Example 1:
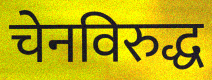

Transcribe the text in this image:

चेनविरुद्ध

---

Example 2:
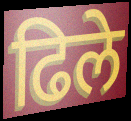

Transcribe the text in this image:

ढिले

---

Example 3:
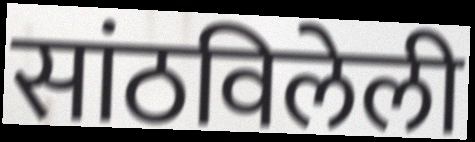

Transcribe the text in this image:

सांठविलेली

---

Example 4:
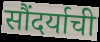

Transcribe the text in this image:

सौंदर्याची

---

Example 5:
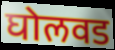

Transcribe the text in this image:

घोलवड